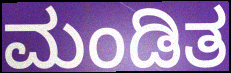
ಮಂಡಿತ